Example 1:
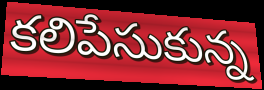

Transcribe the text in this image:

కలిపేసుకున్న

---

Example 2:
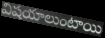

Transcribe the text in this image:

విషయాలుంటాయి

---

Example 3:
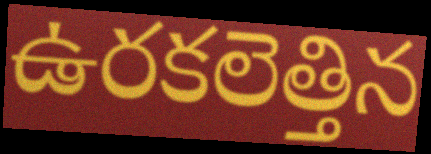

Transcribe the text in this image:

ఉరకలెత్తిన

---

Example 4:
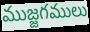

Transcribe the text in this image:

ముజ్జగములు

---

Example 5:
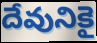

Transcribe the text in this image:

దేవునికై